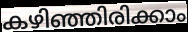
കഴിഞ്ഞിരിക്കാം